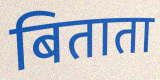
बिताता